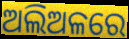
ଅଲିଅଳରେ